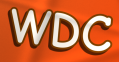
WDC